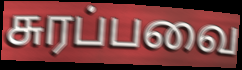
சுரப்பவை